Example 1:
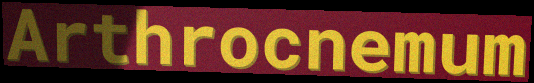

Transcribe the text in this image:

Arthrocnemum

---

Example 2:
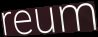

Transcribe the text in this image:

reum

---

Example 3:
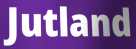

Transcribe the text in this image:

Jutland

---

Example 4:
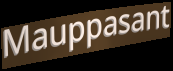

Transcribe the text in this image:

Mauppasant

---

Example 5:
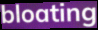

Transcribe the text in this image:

bloating